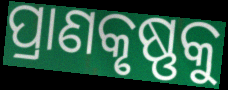
ପ୍ରାଣକୃଷ୍ଣକୁ